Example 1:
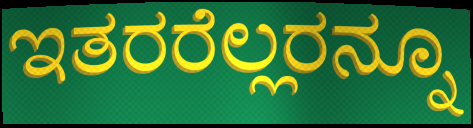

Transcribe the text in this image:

ಇತರರೆಲ್ಲರನ್ನೂ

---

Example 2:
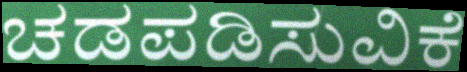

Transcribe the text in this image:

ಚಡಪಡಿಸುವಿಕೆ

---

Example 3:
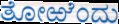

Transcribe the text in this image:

ತೋಱೆಂದು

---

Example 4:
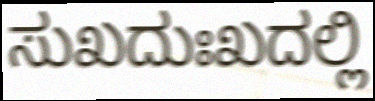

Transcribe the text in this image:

ಸುಖದುಃಖದಲ್ಲಿ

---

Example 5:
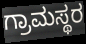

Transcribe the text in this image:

ಗ್ರಾಮಸ್ಥರ